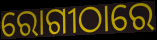
ରୋଗୀଠାରେ